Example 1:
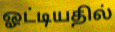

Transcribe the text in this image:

ஓட்டியதில்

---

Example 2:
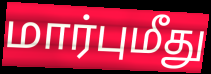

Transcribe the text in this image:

மார்புமீது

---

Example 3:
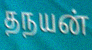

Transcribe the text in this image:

தநயன்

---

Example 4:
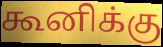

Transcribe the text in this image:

கூனிக்கு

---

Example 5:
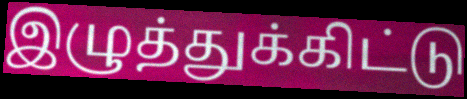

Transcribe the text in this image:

இழுத்துக்கிட்டு